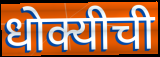
धोक्यीची